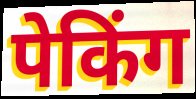
पेकिंग